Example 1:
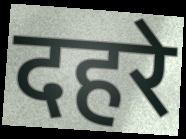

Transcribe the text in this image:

दहरे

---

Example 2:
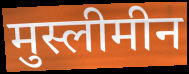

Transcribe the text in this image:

मुस्लीमीन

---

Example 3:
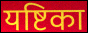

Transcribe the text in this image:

यष्टिका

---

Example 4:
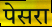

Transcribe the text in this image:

पेसरा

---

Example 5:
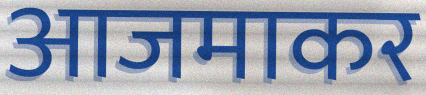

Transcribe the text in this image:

आजमाकर